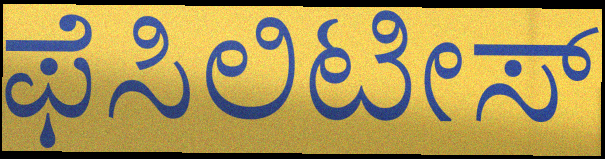
ಫೆಸಿಲಿಟೀಸ್